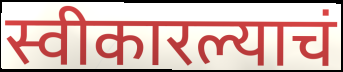
स्वीकारल्याचं